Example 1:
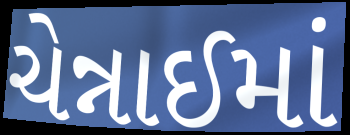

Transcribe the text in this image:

ચેન્નાઈમાં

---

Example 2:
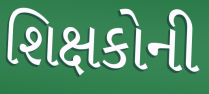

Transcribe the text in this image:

શિક્ષકોની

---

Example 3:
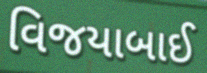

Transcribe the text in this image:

વિજયાબાઈ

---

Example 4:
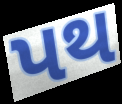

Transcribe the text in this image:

પથ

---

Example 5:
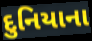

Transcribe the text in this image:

દુનિયાના